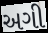
અગી